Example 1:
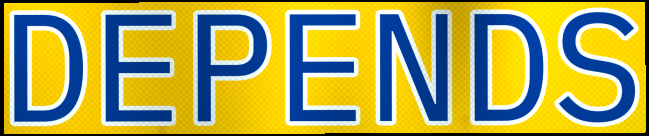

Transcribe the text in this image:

DEPENDS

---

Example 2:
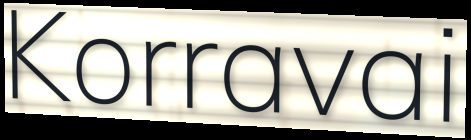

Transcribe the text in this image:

Korravai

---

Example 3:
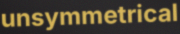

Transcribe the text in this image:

unsymmetrical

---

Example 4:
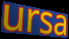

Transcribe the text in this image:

ursa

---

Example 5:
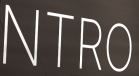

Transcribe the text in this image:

NTRO